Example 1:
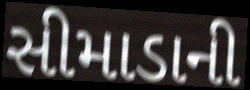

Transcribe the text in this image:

સીમાડાની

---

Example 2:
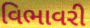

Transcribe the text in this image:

વિભાવરી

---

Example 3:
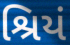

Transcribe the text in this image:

શ્રિયં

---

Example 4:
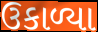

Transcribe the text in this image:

ઉકાળ્યા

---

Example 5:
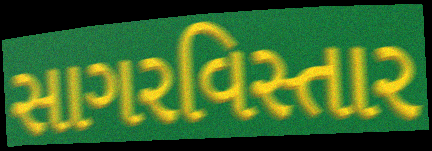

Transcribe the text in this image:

સાગરવિસ્તાર